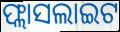
ଫ୍ଲାସଲାଇଟ